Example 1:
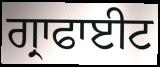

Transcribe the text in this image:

ਗ੍ਰਾਫਾਈਟ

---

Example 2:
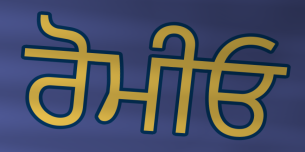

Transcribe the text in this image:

ਰੋਮੀਓ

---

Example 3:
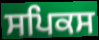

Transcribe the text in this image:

ਸਪਿਕਸ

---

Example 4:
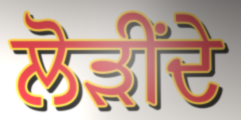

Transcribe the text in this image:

ਲੋੜੀਂਦੇ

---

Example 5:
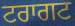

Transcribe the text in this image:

ਟਰਾਗਟ